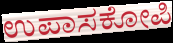
ಉಪಾಸಕೋಪಿ